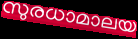
സുരധാമാലയ